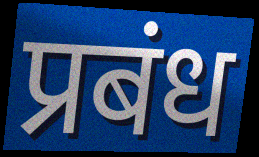
प्रबंध